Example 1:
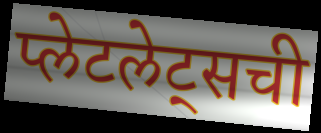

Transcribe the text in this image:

प्लेटलेट्‌सची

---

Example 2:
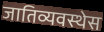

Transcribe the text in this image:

जातिव्यवस्थेस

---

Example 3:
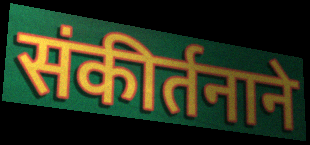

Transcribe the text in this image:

संकीर्तनाने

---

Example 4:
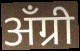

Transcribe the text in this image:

अँग्री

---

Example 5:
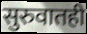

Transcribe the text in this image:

सुरुवातही